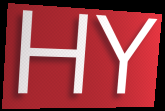
HY